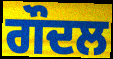
ਗੌਦਲ